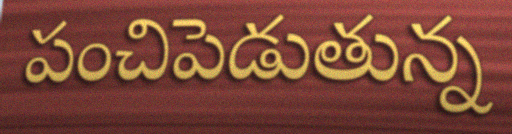
పంచిపెడుతున్న